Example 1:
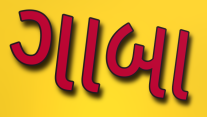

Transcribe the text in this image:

ગાબા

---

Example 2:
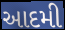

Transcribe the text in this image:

આદમી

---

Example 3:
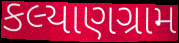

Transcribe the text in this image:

કલ્યાણગ્રામ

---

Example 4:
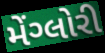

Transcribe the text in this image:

મેંગ્લોરી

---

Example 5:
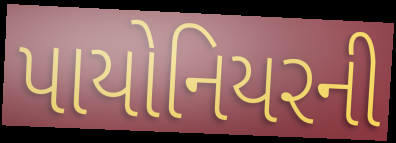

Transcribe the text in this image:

પાયોનિયરની